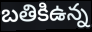
బతికిఉన్న